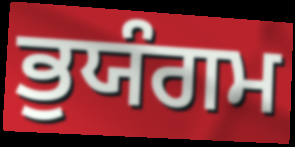
ਭੁਯੰਗਮ